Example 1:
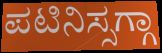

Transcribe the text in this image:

ಪಟಿನಿಸ್ಸಗ್ಗಾ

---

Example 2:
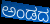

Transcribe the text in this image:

ಅಂಡದ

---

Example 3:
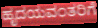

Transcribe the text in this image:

ಹೃದಯವಂತರಿಗೆ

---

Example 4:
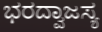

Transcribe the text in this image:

ಭರದ್ವಾಜಸ್ಯ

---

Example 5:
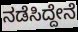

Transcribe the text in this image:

ನಡೆಸಿದ್ದೇನೆ